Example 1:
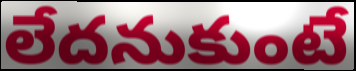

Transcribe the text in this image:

లేదనుకుంటే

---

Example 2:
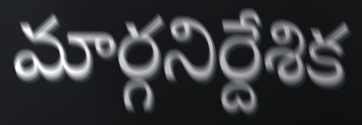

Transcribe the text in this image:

మార్గనిర్దేశిక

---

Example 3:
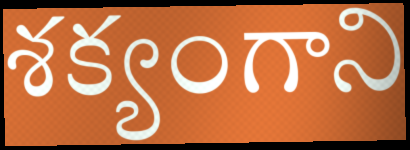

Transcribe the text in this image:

శక్యంగాని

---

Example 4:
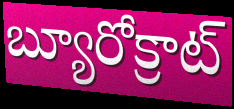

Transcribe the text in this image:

బ్యూరోక్రాట్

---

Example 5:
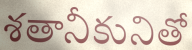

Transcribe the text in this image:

శతానీకునితో